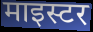
माइस्टर